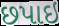
છપાઇ